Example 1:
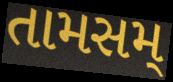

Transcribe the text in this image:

તામસમ્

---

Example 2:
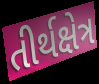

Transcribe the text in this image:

તીર્થક્ષેત્ર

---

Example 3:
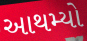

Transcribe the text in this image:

આથમ્યો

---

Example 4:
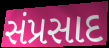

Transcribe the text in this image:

સંપ્રસાદ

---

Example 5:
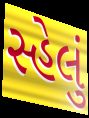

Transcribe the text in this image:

સ્હેલું